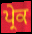
ਪ੍ਰੇਕ